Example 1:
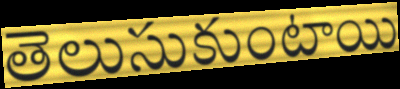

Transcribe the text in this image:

తెలుసుకుంటాయి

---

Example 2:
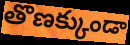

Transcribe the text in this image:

తొణక్కుండా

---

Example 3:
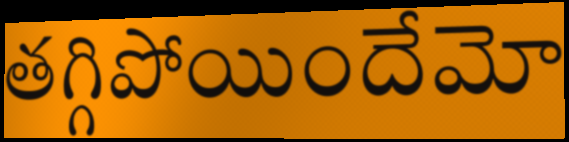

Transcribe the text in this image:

తగ్గిపోయిందేమో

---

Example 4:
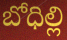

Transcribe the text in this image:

బోధిల్లి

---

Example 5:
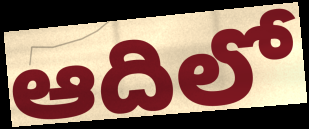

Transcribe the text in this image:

ఆదిలో